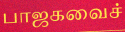
பாஜகவைச்